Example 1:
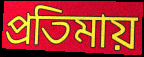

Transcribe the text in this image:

প্রতিমায়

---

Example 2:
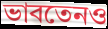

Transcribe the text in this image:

ভাবতেনও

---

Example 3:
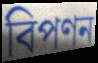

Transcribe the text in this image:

বিপণন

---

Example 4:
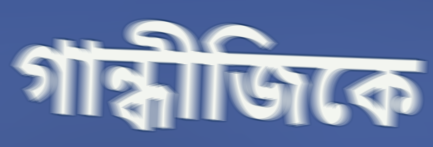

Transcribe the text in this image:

গান্ধীজিকে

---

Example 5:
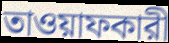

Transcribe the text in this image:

তাওয়াফকারী